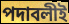
পদাবলীই